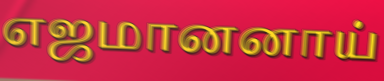
எஜமானனாய்